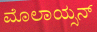
ಮೊಲಾಯ್ಸನ್